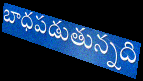
బాధపడుతున్నది